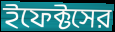
ইফেক্টসের